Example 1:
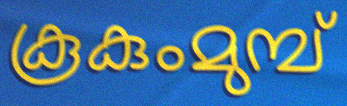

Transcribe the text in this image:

കൂകുംമുമ്പ്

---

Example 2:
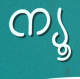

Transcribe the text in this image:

ന്യൂ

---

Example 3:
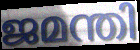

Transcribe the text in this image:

ജമന്തി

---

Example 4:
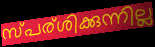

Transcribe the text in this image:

സ്പര്ശിക്കുന്നില്ല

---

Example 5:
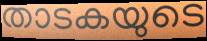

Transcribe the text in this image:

താടകയുടെ